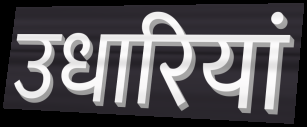
उधारियां